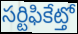
సర్టిఫికేట్తో